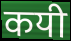
कयी